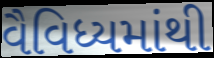
વૈવિધ્યમાંથી